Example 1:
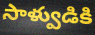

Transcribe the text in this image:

సాళ్వుడికి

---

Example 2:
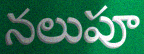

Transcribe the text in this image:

నలుపూ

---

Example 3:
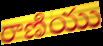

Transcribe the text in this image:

రాణియు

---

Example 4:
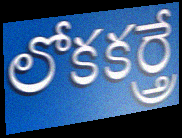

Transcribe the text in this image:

లోకకర్త్రే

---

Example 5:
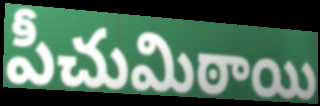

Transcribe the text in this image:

పీచుమిఠాయి